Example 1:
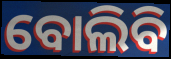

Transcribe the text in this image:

ବୋଲିବି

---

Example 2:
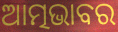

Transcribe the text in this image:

ଆତ୍ମଭାବର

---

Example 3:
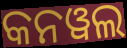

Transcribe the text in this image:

କନୱଲ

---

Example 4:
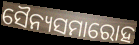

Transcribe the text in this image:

ସୈନ୍ୟସମାରୋହ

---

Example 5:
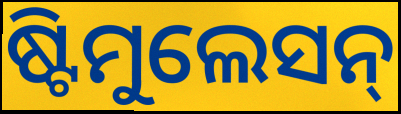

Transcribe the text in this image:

ଷ୍ଟିମୁଲେସନ୍